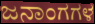
ಜನಾಂಗಗಳ